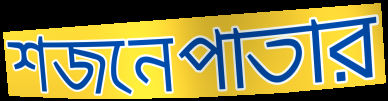
শজনেপাতার